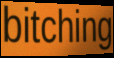
bitching